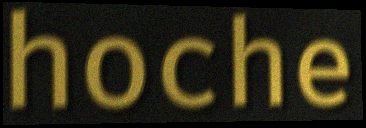
hoche